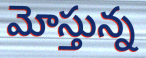
మోస్తున్న